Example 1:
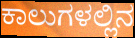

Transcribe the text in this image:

ಕಾಲುಗಳಲ್ಲಿನ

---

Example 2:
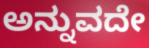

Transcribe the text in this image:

ಅನ್ನುವದೇ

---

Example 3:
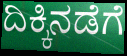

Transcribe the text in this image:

ದಿಕ್ಕಿನಡೆಗೆ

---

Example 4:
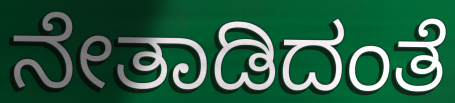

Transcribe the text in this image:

ನೇತಾಡಿದಂತೆ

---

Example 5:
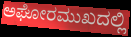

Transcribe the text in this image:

ಅಘೋರಮುಖದಲ್ಲಿ